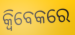
କ୍ୱିବେକରେ